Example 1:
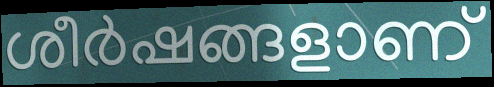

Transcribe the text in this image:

ശീർഷങ്ങളാണ്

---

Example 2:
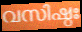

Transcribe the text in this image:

വസിഷ്ഠഃ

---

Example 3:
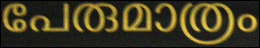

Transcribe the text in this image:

പേരുമാത്രം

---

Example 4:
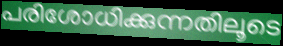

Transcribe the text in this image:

പരിശോധിക്കുന്നതിലൂടെ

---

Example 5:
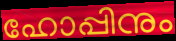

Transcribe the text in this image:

ഹോപ്പിനും